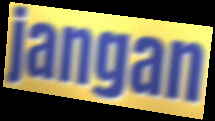
jangan